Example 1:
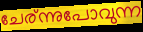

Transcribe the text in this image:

ചേര്ന്നുപോവുന്ന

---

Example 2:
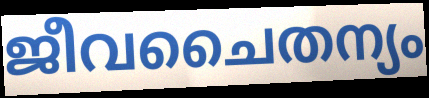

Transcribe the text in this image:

ജീവചൈതന്യം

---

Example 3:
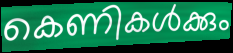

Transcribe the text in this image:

കെണികൾക്കും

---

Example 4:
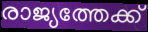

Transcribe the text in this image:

രാജ്യത്തേക്ക്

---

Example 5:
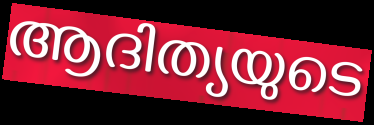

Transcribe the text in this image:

ആദിത്യയുടെ